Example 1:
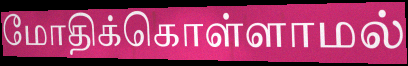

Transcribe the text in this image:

மோதிக்கொள்ளாமல்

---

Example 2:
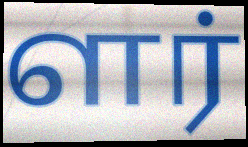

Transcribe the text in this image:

ளர்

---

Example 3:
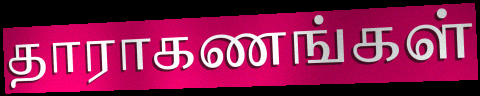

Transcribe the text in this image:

தாராகணங்கள்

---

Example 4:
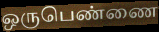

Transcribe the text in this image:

ஒருபெண்ணை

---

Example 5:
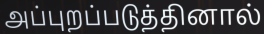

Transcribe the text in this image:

அப்புறப்படுத்தினால்